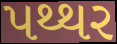
પથ્થર